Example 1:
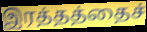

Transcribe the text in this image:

இரத்தத்தைச்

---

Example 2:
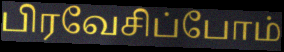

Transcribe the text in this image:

பிரவேசிப்போம்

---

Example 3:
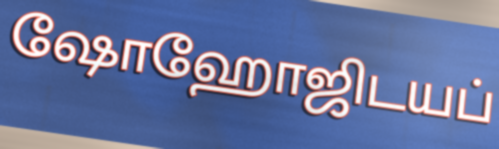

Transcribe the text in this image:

ஷோஹோஜிடயப்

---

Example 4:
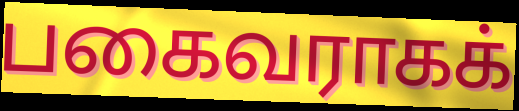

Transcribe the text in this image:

பகைவராகக்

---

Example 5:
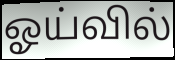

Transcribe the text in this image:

ஓய்வில்